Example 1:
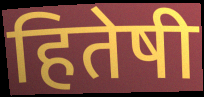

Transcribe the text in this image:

हितेषी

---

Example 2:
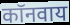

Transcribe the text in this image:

कॉनवाय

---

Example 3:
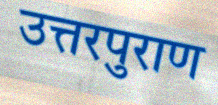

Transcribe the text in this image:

उत्तरपुराण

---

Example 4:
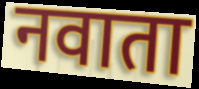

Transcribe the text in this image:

नवाता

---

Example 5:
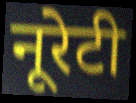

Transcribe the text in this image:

नूरेटी